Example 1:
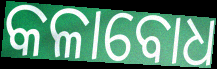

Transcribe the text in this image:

କଳାବୋଧ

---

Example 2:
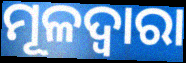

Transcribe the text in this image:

ମୂଳଦ୍ଵାରା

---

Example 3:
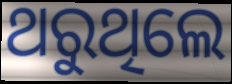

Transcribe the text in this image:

ଥରୁଥିଲେ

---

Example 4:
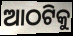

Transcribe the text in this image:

ଆଠଟିକୁ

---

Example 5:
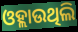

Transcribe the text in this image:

ଓହ୍ଲାଉଥିଲି